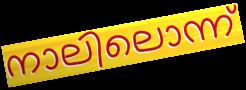
നാലിലൊന്ന്